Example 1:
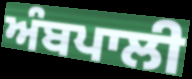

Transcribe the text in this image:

ਅੰਬਪਾਲੀ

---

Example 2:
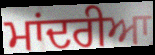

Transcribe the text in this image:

ਮਾਂਦਰੀਆ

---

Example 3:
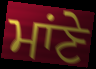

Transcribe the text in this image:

ਮਾਂਣੇ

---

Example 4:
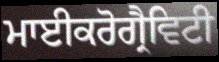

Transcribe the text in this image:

ਮਾਈਕਰੋਗ੍ਰੈਵਿਟੀ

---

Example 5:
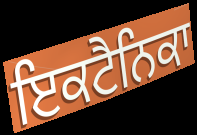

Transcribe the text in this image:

ਇਕਟੈਨਿਕਾ